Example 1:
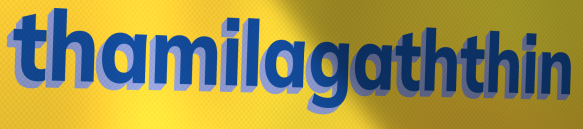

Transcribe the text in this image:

thamilagaththin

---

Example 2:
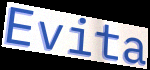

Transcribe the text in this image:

Evita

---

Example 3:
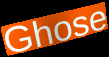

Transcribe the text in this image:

Ghose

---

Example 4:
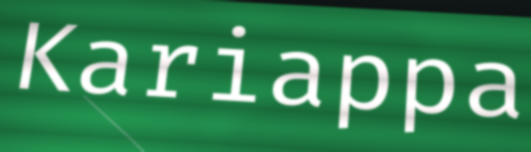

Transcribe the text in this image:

Kariappa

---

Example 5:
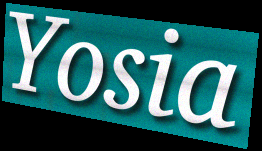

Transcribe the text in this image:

Yosia